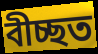
বীচ্ছত